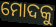
ମୋଦକୁ